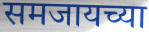
समजायच्या